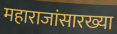
महाराजांसारख्या